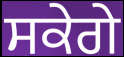
ਸਕੇਗੇ